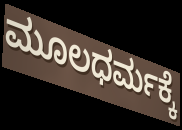
ಮೂಲಧರ್ಮಕ್ಕೆ